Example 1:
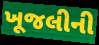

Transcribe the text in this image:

ખૂજલીની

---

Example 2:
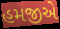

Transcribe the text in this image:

હમજીએ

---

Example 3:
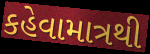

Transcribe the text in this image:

કહેવામાત્રથી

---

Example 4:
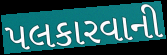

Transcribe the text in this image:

પલકારવાની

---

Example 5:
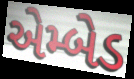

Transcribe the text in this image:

એમ્બેડ